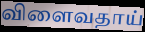
விளைவதாய்